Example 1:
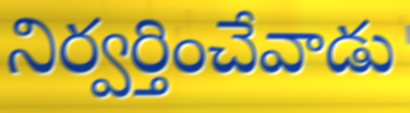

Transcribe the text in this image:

నిర్వర్తించేవాడు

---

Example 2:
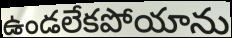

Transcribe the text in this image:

ఉండలేకపోయాను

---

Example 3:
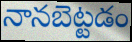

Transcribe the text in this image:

నానబెట్టడం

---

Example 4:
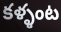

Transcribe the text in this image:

కళ్ళంట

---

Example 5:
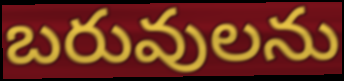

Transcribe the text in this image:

బరువులను